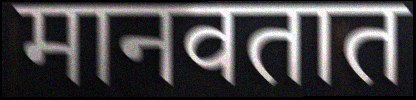
मानवतात